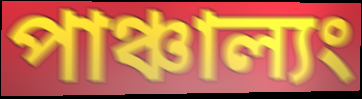
পাঞ্চাল্যং